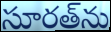
సూరత్‌ను